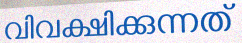
വിവക്ഷിക്കുന്നത്